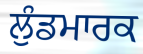
ਲੁੰਡਮਾਰਕ